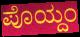
ಪೊಯ್ದಂ